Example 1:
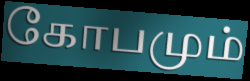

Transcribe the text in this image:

கோபமும்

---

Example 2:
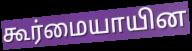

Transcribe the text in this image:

கூர்மையாயின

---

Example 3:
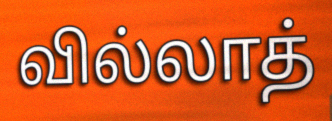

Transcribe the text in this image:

வில்லாத்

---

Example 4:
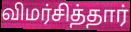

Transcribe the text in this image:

விமர்சித்தார்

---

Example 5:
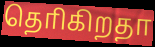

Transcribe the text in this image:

தெரிகிறதா